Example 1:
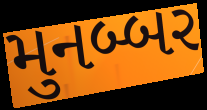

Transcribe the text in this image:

મુનબ્બર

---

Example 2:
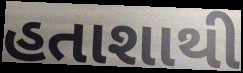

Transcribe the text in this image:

હતાશાથી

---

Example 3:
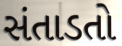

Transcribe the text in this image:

સંતાડતો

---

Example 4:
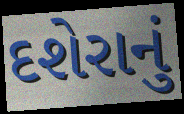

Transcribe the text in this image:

દશેરાનું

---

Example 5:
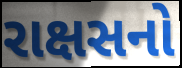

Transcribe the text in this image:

રાક્ષસનો